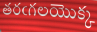
తరఁగలయొక్క